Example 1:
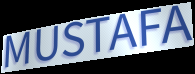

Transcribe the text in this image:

MUSTAFA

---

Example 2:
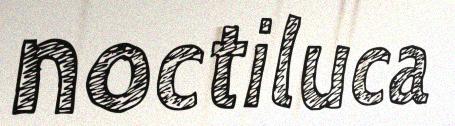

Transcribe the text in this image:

noctiluca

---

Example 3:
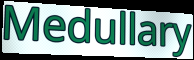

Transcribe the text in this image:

Medullary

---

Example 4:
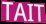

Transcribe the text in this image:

TAIT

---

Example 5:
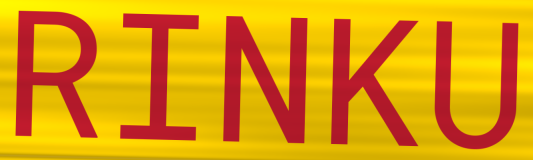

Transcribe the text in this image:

RINKU